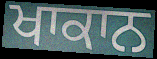
ਖਾਕਾਨ